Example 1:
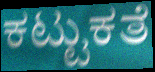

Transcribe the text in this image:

ಕಟ್ಟುಕತೆ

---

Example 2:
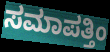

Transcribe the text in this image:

ಸಮಾಪತ್ತಿಂ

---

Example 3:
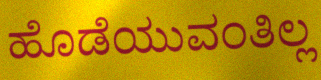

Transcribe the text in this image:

ಹೊಡೆಯುವಂತಿಲ್ಲ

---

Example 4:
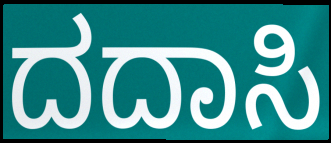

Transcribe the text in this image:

ದದಾಸಿ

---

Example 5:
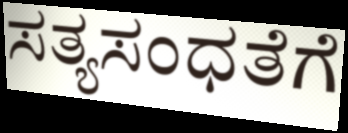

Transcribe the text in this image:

ಸತ್ಯಸಂಧತೆಗೆ